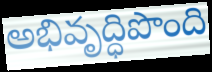
అభివృద్ధిపొంది